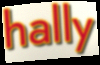
hally